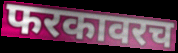
फरकावरच